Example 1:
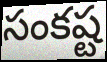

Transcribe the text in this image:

సంకష్ట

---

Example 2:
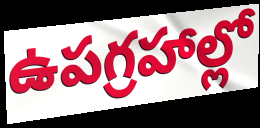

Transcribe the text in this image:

ఉపగ్రహాల్లో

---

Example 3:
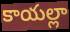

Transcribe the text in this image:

కాయల్లా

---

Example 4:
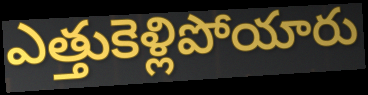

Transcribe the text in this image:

ఎత్తుకెళ్లిపోయారు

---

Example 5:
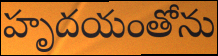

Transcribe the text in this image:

హృదయంతోను